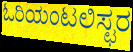
ಓರಿಯಂಟಲಿಸ್ಟರ